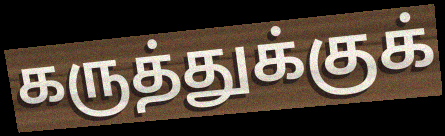
கருத்துக்குக்